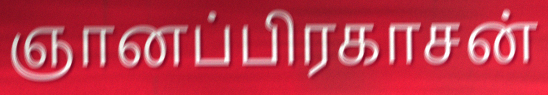
ஞானப்பிரகாசன்